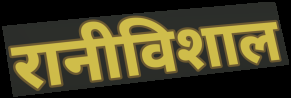
रानीविशाल